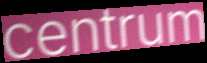
centrum